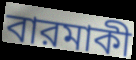
বারমাকী